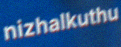
nizhalkuthu